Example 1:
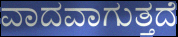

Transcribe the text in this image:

ವಾದವಾಗುತ್ತದೆ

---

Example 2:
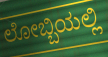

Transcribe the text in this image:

ಲೋಬ್ಬಿಯಲ್ಲಿ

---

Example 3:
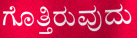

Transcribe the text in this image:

ಗೊತ್ತಿರುವುದು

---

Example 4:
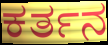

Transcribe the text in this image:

ಕರ್ತನ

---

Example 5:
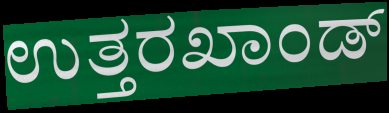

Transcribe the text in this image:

ಉತ್ತರಖಾಂಡ್